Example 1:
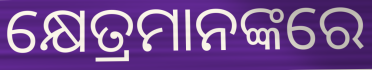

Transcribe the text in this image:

କ୍ଷେତ୍ରମାନଙ୍କରେ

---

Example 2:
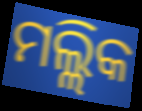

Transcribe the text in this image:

ମଲ୍ଲିକ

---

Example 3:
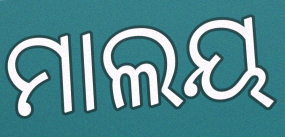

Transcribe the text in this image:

ମାଲୟ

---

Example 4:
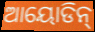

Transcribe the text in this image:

ଆୟୋଡିନ୍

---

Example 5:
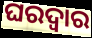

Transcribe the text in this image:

ଘରଦ୍ବାର